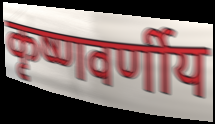
कृष्णवर्णीय